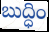
బుద్ధిం